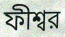
ফীশ্বর